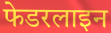
फेडरलाइन